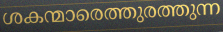
ശകന്മാരെത്തുരത്തുന്ന